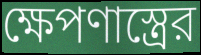
ক্ষেপণাস্ত্রের